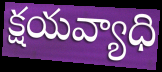
క్షయవ్యాధి